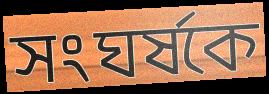
সংঘর্ষকে